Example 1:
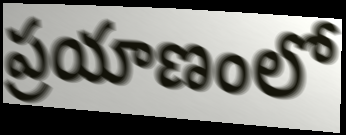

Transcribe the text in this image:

ప్రయాణంలో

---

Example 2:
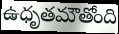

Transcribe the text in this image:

ఉధృతమౌతోంది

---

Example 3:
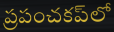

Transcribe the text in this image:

ప్రపంచకప్‌లో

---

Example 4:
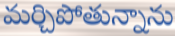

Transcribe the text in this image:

మర్చిపోతున్నాను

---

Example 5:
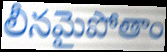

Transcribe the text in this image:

లీనమైపోతాం